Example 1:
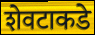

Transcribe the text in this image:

शेवटाकडे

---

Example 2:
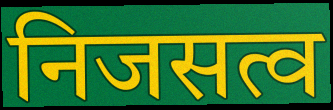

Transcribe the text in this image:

निजसत्व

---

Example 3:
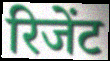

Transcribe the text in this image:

रिजेंट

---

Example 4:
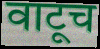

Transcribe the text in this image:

वाटूच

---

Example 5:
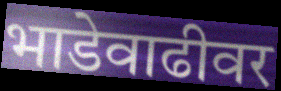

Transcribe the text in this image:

भाडेवाढीवर